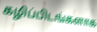
கழிப்பிடங்களாக